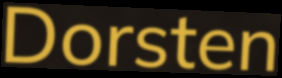
Dorsten